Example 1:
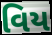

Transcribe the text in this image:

વિય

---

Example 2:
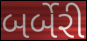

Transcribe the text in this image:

બર્બેરી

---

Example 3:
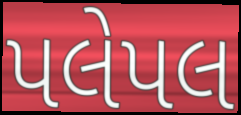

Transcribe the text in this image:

પલેપલ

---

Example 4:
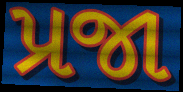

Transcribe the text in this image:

પ્રજા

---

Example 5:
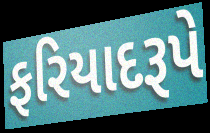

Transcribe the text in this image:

ફરિયાદરૂપે